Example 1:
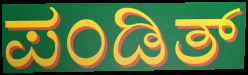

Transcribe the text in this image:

ಪಂಡಿತ್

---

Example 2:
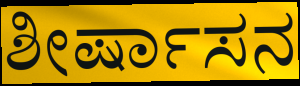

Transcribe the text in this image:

ಶೀರ್ಷಾಸನ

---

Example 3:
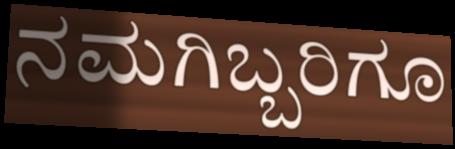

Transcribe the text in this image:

ನಮಗಿಬ್ಬರಿಗೂ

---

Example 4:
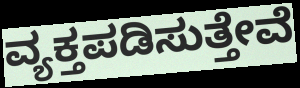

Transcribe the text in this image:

ವ್ಯಕ್ತಪಡಿಸುತ್ತೇವೆ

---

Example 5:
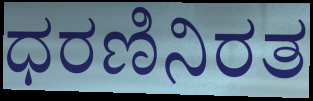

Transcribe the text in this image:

ಧರಣಿನಿರತ